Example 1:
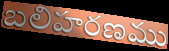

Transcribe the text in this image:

బలిహరణము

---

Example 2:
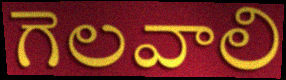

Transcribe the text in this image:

గెలవాలి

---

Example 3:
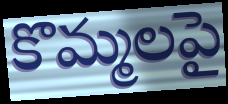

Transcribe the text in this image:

కొమ్మలపై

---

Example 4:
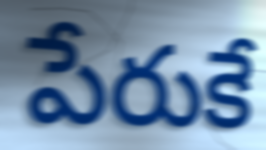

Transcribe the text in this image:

పేరుకే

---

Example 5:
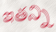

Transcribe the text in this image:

ఇతన్ని